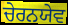
ਚੇਰਨਯੇਵ